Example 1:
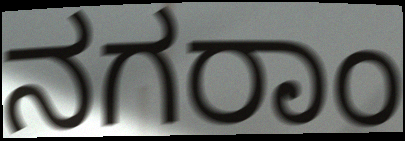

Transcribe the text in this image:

ನಗರಾಂ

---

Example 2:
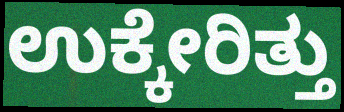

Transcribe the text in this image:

ಉಕ್ಕೇರಿತ್ತು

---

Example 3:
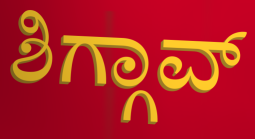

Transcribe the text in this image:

ಶಿಗ್ಗಾವ್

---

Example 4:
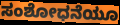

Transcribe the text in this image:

ಸಂಶೋಧನೆಯೂ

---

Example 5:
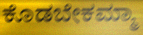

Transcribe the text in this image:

ಕೊಡಬೇಕಮ್ಮಾ